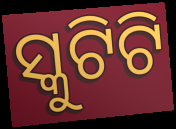
ସ୍କୁଟିଟି